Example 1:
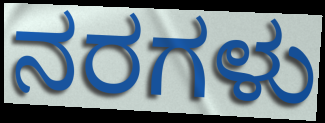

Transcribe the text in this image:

ನರಗಳು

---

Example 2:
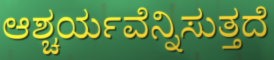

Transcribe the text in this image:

ಆಶ್ಚರ್ಯವೆನ್ನಿಸುತ್ತದೆ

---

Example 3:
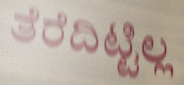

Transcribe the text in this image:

ತೆರೆದಿಟ್ಟಿಲ್ಲ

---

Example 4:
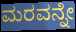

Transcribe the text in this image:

ಮರವನ್ನೇ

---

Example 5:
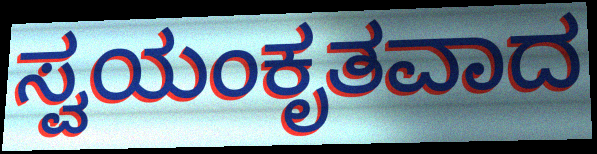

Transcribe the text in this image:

ಸ್ವಯಂಕೃತವಾದ